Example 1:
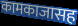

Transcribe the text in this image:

कामकाजासह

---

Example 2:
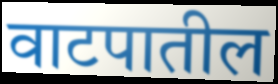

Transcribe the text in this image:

वाटपातील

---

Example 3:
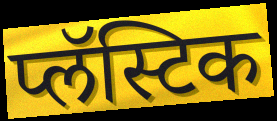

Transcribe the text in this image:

प्लॅस्टिक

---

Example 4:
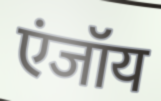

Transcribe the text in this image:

एंजॉय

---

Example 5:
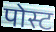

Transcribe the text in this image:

पोस्ट